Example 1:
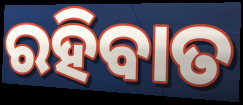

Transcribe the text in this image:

ରହିବାତ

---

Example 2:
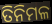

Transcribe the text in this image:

ତିନିମଳ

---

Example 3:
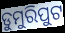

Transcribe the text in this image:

ଡୁମୁରିପୁଟ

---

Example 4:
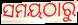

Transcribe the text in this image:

ସମୟଠାରୁ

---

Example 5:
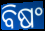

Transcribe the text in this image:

ବିଷଂ